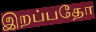
இறப்பதோ